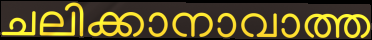
ചലിക്കാനാവാത്ത